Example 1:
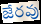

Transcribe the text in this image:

జేరవు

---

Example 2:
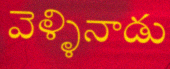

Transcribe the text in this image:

వెళ్ళినాడు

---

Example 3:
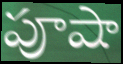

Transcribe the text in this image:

పూషా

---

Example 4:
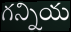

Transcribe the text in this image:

గన్నియ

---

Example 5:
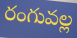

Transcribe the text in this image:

రంగువల్ల